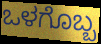
ಒಳಗೊಬ್ಬ